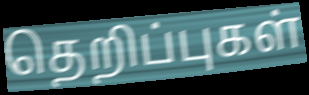
தெறிப்புகள்